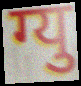
ग्यु